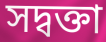
সদ্বক্তা